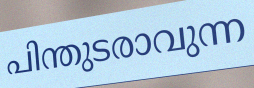
പിന്തുടരാവുന്ന